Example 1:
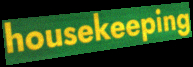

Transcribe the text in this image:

housekeeping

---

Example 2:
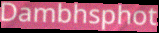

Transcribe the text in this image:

Dambhsphot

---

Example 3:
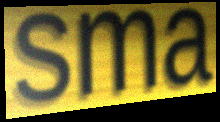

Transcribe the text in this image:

sma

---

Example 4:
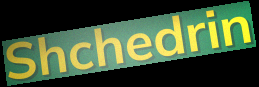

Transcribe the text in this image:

Shchedrin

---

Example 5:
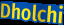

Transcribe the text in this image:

Dholchi